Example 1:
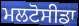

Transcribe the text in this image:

ਮਲਟੋਸੀਡਾ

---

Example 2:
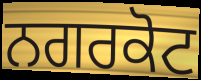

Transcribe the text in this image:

ਨਗਰਕੋਟ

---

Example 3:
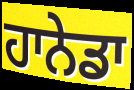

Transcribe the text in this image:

ਹਾਨੇਡਾ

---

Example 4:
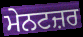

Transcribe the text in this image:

ਮੇਨਟਜ਼ਰ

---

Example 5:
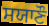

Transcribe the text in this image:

ਸਯਾਣੌ